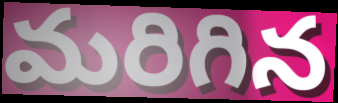
మరిగిన